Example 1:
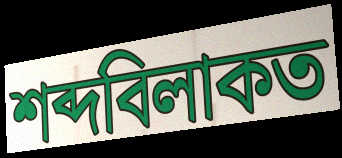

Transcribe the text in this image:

শব্দবিলাকত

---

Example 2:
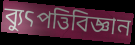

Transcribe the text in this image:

ব্যুৎপত্তিবিজ্ঞান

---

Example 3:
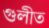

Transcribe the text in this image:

গুলীত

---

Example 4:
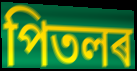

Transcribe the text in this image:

পিতলৰ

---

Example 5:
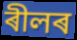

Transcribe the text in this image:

ৰীলৰ